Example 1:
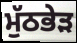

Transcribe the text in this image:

ਮੁੱਠਭੇੜ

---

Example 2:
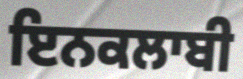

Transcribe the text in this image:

ਇਨਕਲਾਬੀ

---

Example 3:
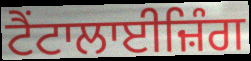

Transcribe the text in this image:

ਟੈਂਟਾਲਾਈਜ਼ਿੰਗ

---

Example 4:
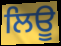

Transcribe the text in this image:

ਲਿਊ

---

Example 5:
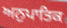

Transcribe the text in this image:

ਅਨੁਪਾਤਿਕ